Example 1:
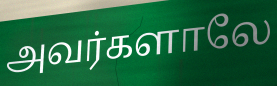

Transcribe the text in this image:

அவர்களாலே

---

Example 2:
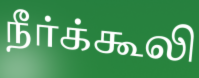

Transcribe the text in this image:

நீர்க்கூலி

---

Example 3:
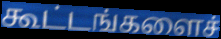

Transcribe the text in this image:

கூட்டங்களைச்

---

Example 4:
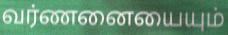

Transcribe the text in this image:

வர்ணனையையும்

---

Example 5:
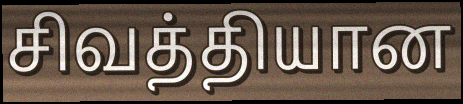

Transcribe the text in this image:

சிவத்தியான